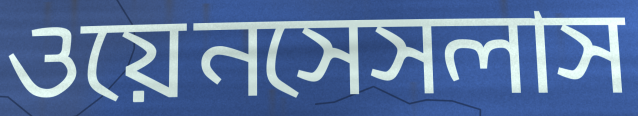
ওয়েনসেসলাস